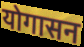
योगासन